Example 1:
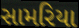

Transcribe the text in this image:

સામરિયા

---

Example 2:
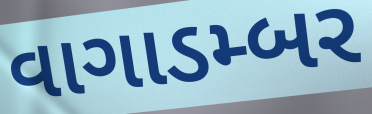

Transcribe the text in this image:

વાગાડમ્બર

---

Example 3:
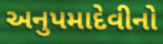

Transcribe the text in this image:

અનુપમાદેવીનો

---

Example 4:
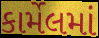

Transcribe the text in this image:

કાર્મેલમાં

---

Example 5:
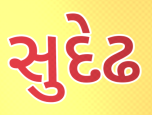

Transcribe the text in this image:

સુદેઢ